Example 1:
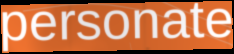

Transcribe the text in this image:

personate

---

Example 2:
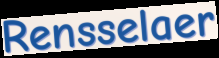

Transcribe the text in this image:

Rensselaer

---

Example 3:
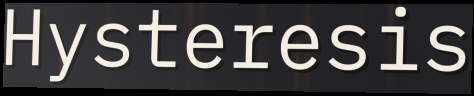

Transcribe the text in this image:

Hysteresis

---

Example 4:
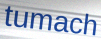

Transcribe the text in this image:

tumach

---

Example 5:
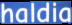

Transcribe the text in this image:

haldia